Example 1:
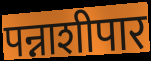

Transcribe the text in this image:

पन्नाशीपार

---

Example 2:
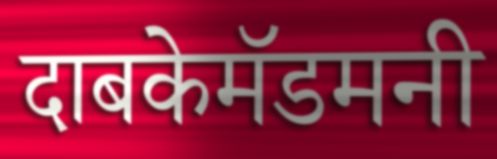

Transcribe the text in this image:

दाबकेमॅडमनी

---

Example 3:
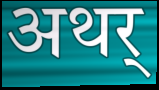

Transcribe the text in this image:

अथर्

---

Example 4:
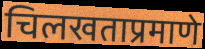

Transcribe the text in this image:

चिलखताप्रमाणे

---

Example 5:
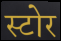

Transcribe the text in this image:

स्टोर